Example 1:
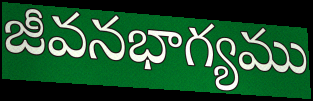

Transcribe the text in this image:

జీవనభాగ్యము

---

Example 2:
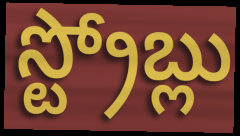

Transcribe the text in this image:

స్ట్రోబ్లు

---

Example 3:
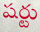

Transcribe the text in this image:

షర్టు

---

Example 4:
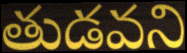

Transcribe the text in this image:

తుడవని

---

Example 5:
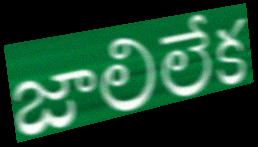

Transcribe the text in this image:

జాలిలేక